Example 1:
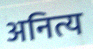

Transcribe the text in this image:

अनित्य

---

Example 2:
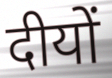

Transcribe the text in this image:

दीयों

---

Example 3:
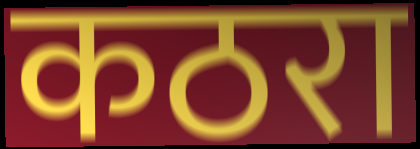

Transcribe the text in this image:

कठरा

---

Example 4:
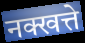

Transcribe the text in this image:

नक्खत्ते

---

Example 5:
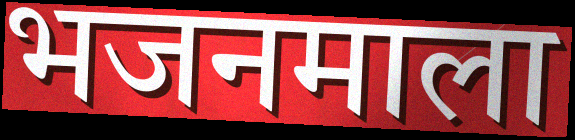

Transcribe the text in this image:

भजनमाला